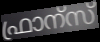
ഫ്രാന്സ്